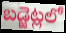
బడ్జెట్లలో